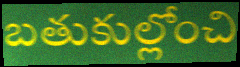
బతుకుల్లోంచి